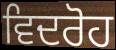
ਵਿਦਰੋਹ